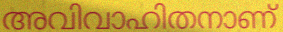
അവിവാഹിതനാണ്